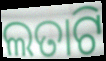
ଲତାଟି